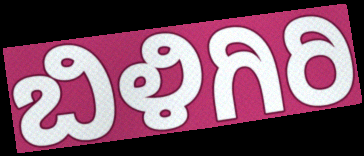
ಬಿಳಿಗಿರಿ